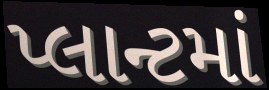
પ્લાન્ટમાં